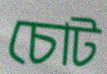
চোট